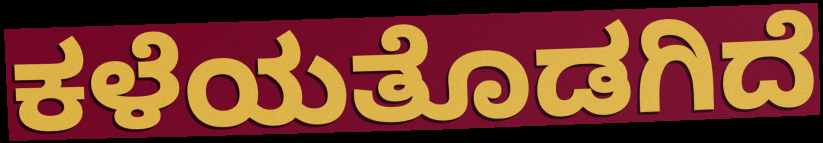
ಕಳೆಯತೊಡಗಿದೆ